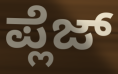
ಪ್ಲೆಜ್